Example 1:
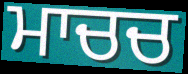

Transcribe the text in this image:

ਮਾਚਚ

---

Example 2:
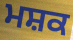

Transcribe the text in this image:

ਮਸ਼ਕ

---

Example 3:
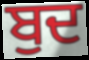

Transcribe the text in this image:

ਬੁਦ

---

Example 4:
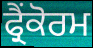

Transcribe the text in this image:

ਫ੍ਰੈਂਕੋਰਮ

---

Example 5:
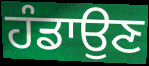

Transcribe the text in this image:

ਹੰਡਾਉਣ